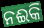
ନଈକି